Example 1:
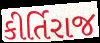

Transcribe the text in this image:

કીર્તિરાજ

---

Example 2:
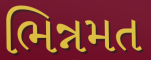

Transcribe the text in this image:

ભિન્નમત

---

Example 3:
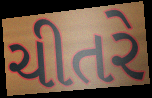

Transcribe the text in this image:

ચીતરે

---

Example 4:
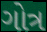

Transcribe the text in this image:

ગોત્ર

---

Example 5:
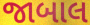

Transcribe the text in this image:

જાબાલ